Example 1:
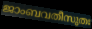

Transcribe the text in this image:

ജാംബവതീസുതഃ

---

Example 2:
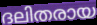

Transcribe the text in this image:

ദലിതരായ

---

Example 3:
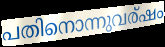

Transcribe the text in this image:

പതിനൊന്നുവര്ഷം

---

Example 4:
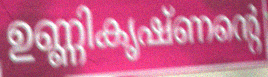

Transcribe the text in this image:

ഉണ്ണികൃഷ്ണന്റെ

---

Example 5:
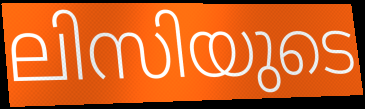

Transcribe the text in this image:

ലിസിയുടെ